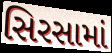
સિરસામાં